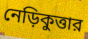
নেড়িকুত্তার